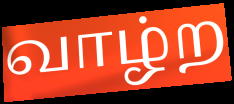
வாழ்ற